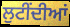
ਲੁਟੀਂਦੀਆਂ